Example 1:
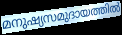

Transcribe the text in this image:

മനുഷ്യസമുദായത്തിൽ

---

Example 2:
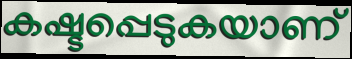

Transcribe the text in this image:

കഷ്ടപ്പെടുകയാണ്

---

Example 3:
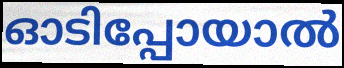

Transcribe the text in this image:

ഓടിപ്പോയാൽ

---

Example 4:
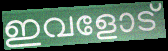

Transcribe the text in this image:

ഇവളോട്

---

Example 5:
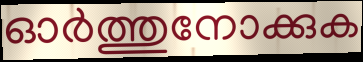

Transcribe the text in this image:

ഓർത്തുനോക്കുക